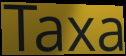
Taxa